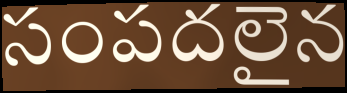
సంపదలైన